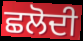
ਛਲੋਦੀ